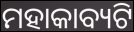
ମହାକାବ୍ୟଟି